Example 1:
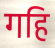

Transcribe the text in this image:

गहि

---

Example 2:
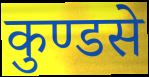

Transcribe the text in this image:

कुण्डसे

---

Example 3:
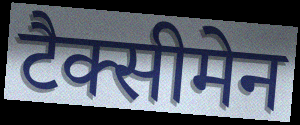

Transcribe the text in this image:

टैक्सीमेन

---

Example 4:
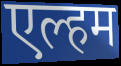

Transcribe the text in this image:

एल्हम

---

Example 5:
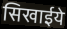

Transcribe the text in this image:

सिखाईये